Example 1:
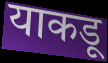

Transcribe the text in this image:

याकडू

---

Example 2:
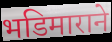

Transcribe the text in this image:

भडिमाराने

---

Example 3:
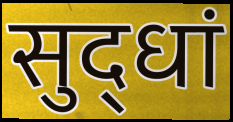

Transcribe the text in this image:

सुद्धां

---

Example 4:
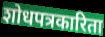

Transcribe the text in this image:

शोधपत्रकारिता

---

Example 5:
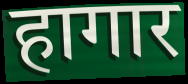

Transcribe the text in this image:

हागार